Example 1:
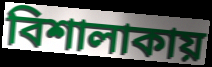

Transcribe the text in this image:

বিশালাকায়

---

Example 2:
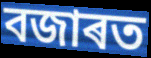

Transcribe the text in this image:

বজাৰত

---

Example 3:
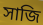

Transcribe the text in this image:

সাজি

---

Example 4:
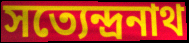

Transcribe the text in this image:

সত্যেন্দ্ৰনাথ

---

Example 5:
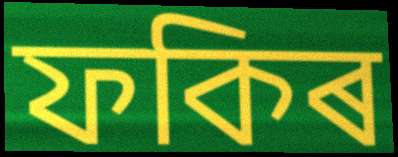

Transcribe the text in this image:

ফকিৰ